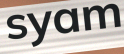
syam